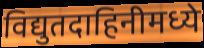
विद्युतदाहिनीमध्ये